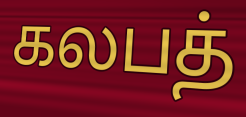
கலபத்